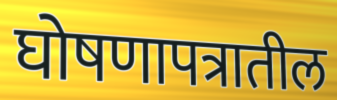
घोषणापत्रातील